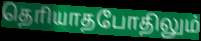
தெரியாதபோதிலும்